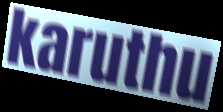
karuthu